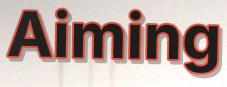
Aiming